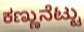
ಕಣ್ಣುನೆಟ್ಟು